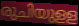
രുചിയുളള